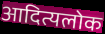
आदित्यलोक